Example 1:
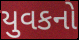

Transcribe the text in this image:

યુવકનો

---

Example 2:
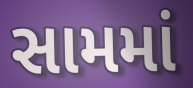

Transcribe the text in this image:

સામમાં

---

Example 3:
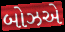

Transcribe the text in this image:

બોઝએ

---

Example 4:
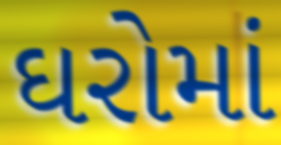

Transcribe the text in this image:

ઘરોમાં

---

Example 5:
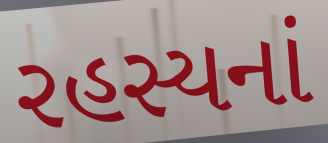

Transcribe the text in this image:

રહસ્યનાં